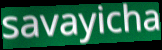
savayicha